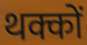
थक्कों